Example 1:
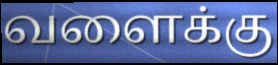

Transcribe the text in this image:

வளைக்கு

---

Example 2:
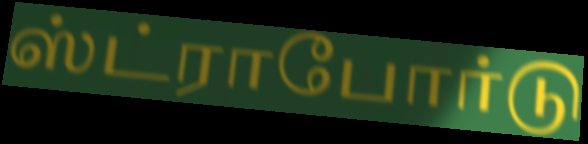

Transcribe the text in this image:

ஸ்ட்ராபோர்டு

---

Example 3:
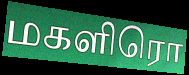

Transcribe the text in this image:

மகளிரொ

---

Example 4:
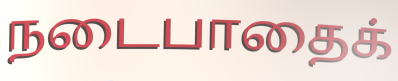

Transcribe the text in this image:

நடைபாதைக்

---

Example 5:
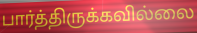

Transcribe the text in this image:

பார்த்திருக்கவில்லை